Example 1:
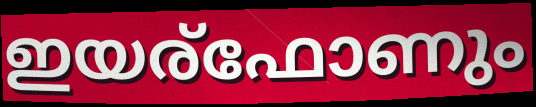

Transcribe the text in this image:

ഇയര്ഫോണും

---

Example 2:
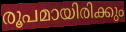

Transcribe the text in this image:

രൂപമായിരിക്കും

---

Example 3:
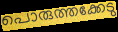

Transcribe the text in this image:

പൊരുത്തക്കേടു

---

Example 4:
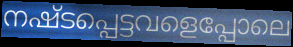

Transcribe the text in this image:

നഷ്ടപ്പെട്ടവളെപ്പോലെ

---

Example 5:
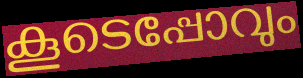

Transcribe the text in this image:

കൂടെപ്പോവും